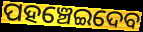
ପହଞ୍ଚେଇଦେବ